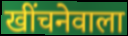
खींचनेवाला